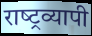
राष्‍ट्रव्‍यापी